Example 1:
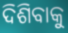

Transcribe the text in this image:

ଦିଶିବାକୁ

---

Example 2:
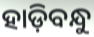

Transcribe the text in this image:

ହାଡ଼ିବନ୍ଧୁ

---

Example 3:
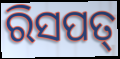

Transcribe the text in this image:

ରିସପତ୍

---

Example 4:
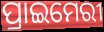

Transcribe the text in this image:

ପ୍ରାଇମେରୀ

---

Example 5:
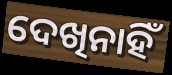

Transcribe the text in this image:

ଦେଖିନାହିଁ